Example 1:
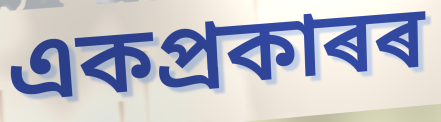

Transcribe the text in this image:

একপ্ৰকাৰৰ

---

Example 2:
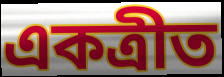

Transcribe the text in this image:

একত্ৰীত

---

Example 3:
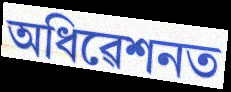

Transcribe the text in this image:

অধিৱেশনত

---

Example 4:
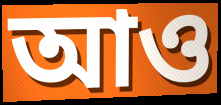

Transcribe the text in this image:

আও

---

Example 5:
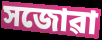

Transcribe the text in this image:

সজোৱা